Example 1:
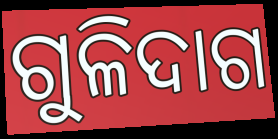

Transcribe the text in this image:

ଗୁଳିଦାଗ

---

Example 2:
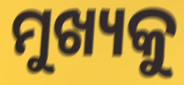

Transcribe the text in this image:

ମୁଖ୍ୟକୁ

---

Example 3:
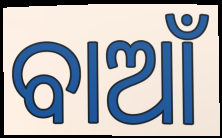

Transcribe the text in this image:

ବାଆଁ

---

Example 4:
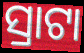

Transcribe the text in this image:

ସ୍ରାଟା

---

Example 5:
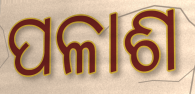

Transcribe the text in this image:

ପଳାଶ